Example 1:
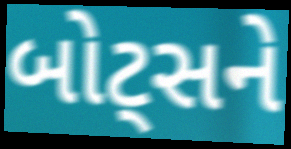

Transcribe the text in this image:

બોટ્સને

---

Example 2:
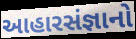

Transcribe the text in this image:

આહારસંજ્ઞાનો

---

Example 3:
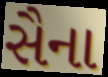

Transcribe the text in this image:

સૈના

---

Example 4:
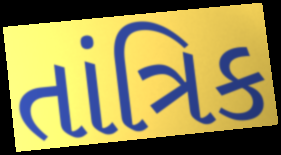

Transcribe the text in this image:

તાંત્રિક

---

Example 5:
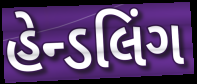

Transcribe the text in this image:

હેન્ડલિંગ